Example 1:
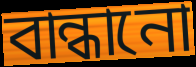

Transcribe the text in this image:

বান্ধানো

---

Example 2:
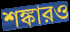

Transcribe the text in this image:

শঙ্কারও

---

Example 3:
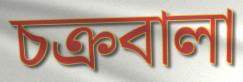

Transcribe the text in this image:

চক্রবালা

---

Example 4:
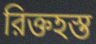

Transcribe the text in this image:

রিক্তহস্ত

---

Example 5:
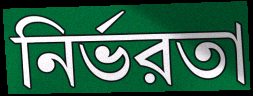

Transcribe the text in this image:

নির্ভরতা